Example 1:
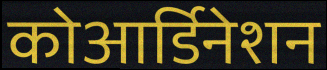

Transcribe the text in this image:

कोआर्डिनेशन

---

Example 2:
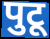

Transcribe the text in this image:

पुटू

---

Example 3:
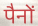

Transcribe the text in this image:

पैनों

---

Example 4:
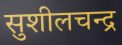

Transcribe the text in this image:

सुशीलचन्द्र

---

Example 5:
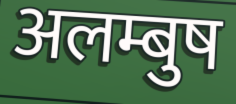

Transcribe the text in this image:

अलम्बुष